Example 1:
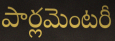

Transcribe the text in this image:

పార్లమెంటరీ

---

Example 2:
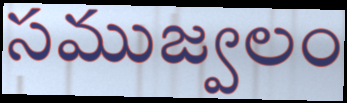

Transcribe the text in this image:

సముజ్వలం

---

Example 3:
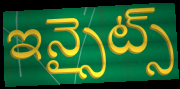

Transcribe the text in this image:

ఇన్సైట్స్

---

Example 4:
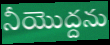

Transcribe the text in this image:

నీయొద్దను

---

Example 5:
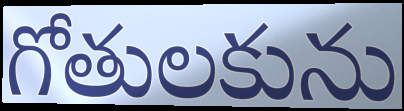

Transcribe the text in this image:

గోతులకును